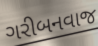
ગરીબનવાજ